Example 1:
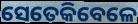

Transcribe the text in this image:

ସେତେକିବେଳେ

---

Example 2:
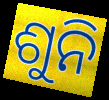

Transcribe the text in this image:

ଶୁନି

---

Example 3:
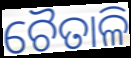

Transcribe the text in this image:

ଚୈତାଳି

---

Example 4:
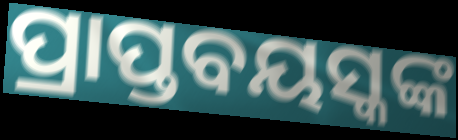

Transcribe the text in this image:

ପ୍ରାପ୍ତବୟସ୍କଙ୍କ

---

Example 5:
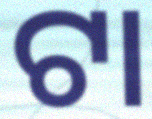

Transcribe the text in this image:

ଟା